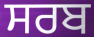
ਸਰਬ